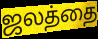
ஜலத்தை